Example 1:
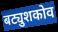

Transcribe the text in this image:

बट्युशकोव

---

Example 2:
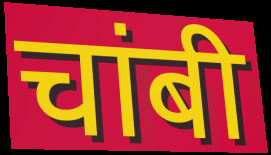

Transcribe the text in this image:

चांबी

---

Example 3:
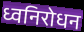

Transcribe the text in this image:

ध्वनिरोधन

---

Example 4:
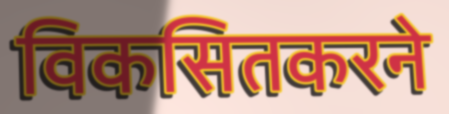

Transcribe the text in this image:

विकसितकरने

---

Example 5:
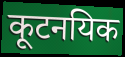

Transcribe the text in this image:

कूटनयिक